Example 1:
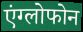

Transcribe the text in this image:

एंग्लोफोन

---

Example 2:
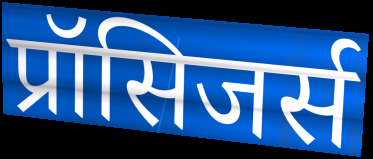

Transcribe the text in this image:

प्रॉसिजर्स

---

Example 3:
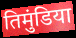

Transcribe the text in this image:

तिमुंडिया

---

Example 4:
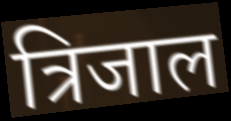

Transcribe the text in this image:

त्रिजाल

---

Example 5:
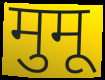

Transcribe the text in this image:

मुमू